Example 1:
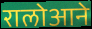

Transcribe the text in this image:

रालोआने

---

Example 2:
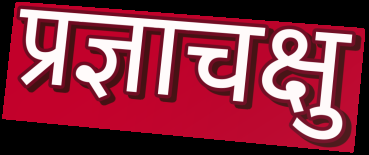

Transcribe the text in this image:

प्रज्ञाचक्षु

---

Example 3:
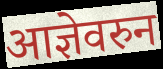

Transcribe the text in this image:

आज्ञेवरुन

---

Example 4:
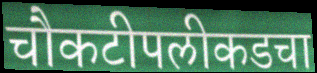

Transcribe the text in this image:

चौकटीपलीकडचा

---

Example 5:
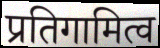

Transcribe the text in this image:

प्रतिगामित्व